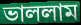
ভাললাম